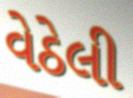
વેઠેલી